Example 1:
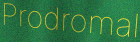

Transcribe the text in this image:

Prodromal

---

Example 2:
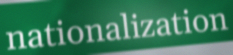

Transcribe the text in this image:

nationalization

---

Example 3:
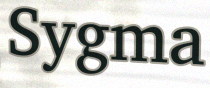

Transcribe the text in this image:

Sygma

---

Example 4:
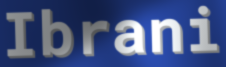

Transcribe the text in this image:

Ibrani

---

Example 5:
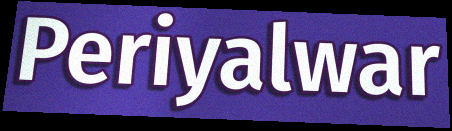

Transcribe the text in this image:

Periyalwar